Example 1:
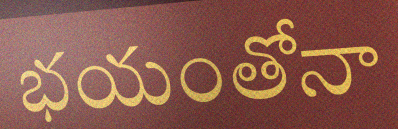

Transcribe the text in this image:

భయంతోనా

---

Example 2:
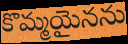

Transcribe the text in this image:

కొమ్మయైనను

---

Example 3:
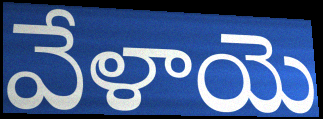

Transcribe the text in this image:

వేళాయె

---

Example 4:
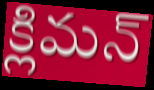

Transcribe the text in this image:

క్లిమన్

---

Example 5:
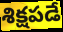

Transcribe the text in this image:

శిక్షపడే